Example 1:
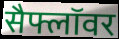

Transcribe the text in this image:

सैफ्लॉवर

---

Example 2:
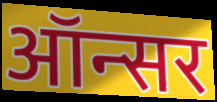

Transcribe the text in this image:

ऑन्सर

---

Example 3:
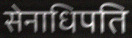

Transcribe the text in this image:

सेनाधिपति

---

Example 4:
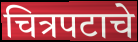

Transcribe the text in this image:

चित्रपटाचे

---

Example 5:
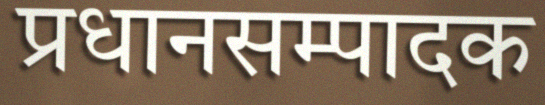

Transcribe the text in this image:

प्रधानसम्पादक